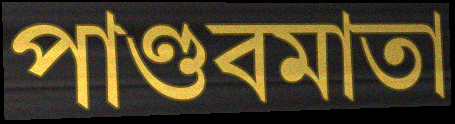
পাণ্ডবমাতা